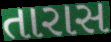
તારાસ